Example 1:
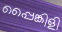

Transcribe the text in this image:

പ്പൈങ്കിളി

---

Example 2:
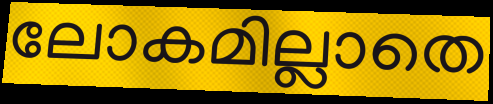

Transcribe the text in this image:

ലോകമില്ലാതെ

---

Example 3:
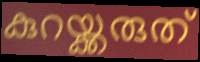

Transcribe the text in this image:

കുറയ്ക്കരുത്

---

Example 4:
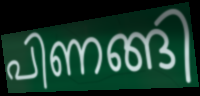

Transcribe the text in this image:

പിണങ്ങി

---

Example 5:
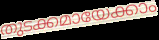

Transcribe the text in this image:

തുടക്കമായേക്കാം